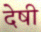
देषी